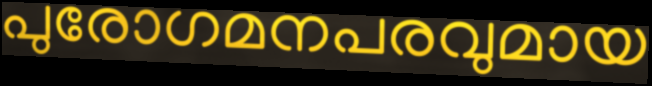
പുരോഗമനപരവുമായ